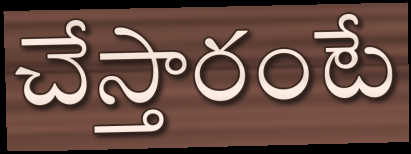
చేస్తారంటే